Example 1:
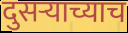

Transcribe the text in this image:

दुसऱ्याच्याच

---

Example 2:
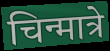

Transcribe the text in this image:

चिन्मात्रे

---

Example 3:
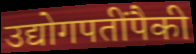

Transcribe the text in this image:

उद्योगपतींपैकी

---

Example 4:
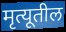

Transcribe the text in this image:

मृत्यूतील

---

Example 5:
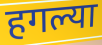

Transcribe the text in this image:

हगल्या